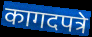
कागदपत्रे